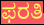
ಫರತಿ